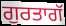
ਗੁਰਤਾਗੱ